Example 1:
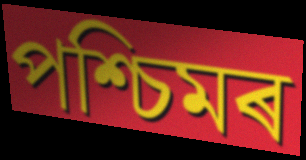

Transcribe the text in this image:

পশ্চিমৰ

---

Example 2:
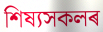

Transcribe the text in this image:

শিষ্যসকলৰ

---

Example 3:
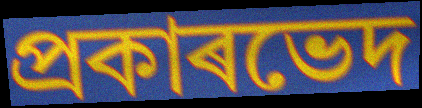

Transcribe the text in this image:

প্ৰকাৰভেদ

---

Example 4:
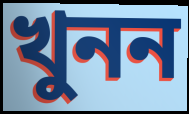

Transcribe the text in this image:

খুনন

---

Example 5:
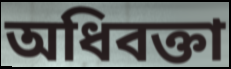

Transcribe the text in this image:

অধিবক্তা